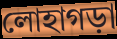
লোহাগড়া